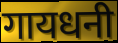
गायधनी